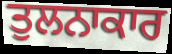
ਤੁਲਨਾਕਾਰ